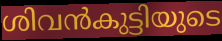
ശിവൻകുട്ടിയുടെ